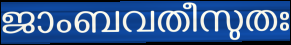
ജാംബവതീസുതഃ